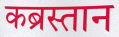
कब्रस्तान